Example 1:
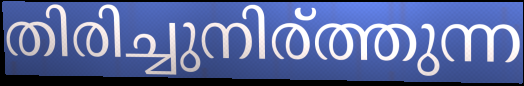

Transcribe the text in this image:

തിരിച്ചുനിര്ത്തുന്ന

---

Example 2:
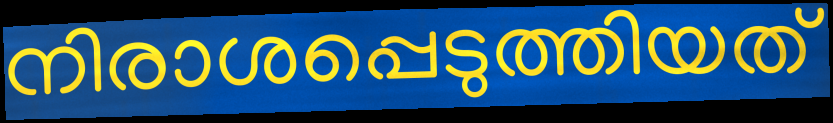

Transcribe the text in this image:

നിരാശപ്പെടുത്തിയത്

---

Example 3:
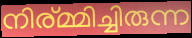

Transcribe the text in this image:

നിര്മ്മിച്ചിരുന്ന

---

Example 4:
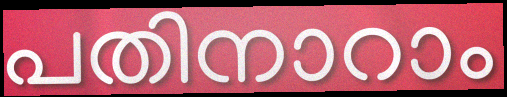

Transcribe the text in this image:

പതിനാറാം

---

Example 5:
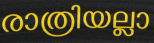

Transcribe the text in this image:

രാത്രിയല്ലാ